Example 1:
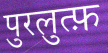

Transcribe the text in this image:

पुरलुत्फ़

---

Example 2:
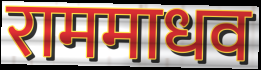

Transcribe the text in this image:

राममाधव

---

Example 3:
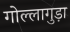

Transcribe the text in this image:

गोल्लागुड़ा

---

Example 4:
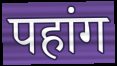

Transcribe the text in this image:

पहांग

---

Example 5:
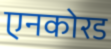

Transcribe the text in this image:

एनकोरड